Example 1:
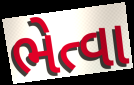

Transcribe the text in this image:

ભેત્વા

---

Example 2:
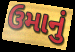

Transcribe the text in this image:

ઉમાનું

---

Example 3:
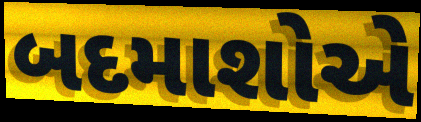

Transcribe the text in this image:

બદમાશોએ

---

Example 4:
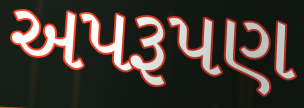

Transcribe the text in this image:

અપરૂપણ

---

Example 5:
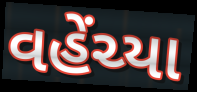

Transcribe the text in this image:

વહેંચ્યા